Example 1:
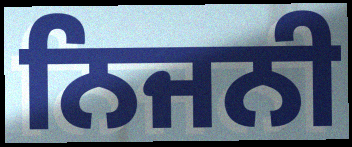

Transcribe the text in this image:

ਨਿਜਨੀ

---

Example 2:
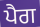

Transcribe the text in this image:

ਪੈਗ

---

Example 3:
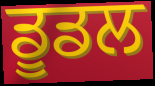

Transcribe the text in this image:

ਡੂਡਲ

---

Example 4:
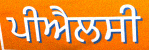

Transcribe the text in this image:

ਪੀਐਲਸੀ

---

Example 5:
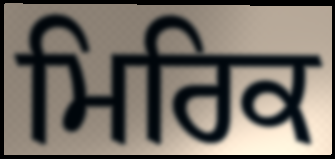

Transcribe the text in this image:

ਮਿਰਿਕ